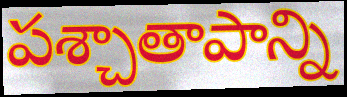
పశ్చాతాపాన్ని